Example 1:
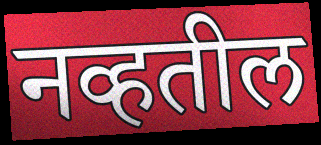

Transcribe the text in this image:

नव्हतील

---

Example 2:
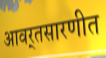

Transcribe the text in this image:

आवर्तसारणीत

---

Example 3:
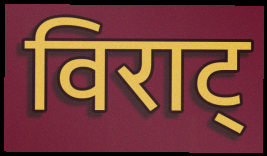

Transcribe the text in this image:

विराट्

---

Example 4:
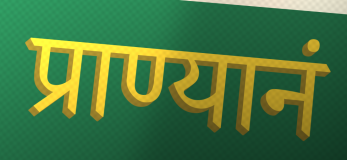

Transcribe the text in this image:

प्राण्यानं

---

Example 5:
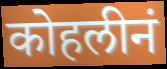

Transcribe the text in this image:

कोहलीनं